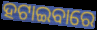
ହଟାଇବାରେ